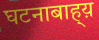
घटनाबाह्य़